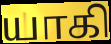
யாகி